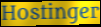
Hostinger